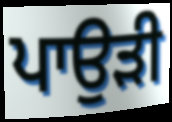
ਪਾਉੜੀ